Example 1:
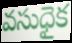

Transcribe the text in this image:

వసుధైక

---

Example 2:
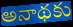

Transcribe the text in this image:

అనాథకు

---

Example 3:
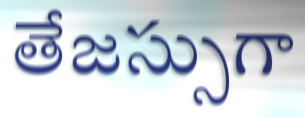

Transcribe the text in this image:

తేజస్సుగా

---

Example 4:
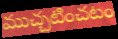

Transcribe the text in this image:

ముచ్చటించటం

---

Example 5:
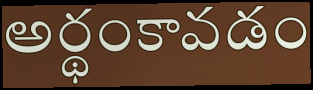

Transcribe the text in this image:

అర్థంకావడం